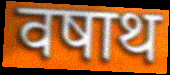
वषाथ